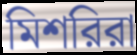
মিশরিরা